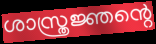
ശാസ്ത്രജ്ഞന്റെ